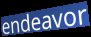
endeavor